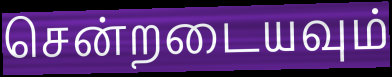
சென்றடையவும்